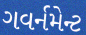
ગવર્નમેન્ટ